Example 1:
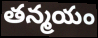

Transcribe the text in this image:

తన్మయం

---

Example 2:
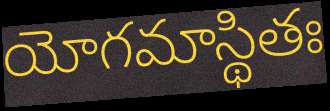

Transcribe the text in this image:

యోగమాస్థితః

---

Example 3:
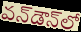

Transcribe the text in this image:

వన్‌డౌన్‌లో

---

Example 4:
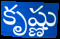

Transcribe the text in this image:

కృష్ణు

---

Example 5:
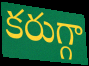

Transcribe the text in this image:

కరుగ్గా